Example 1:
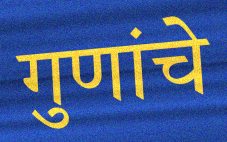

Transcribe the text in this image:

गुणांचे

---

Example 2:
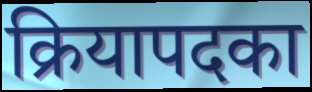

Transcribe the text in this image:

क्रियापदका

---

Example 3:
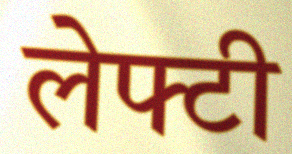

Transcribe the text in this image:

लेफ्टी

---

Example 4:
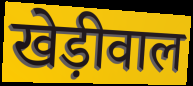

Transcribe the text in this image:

खेड़ीवाल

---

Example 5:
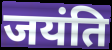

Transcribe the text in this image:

जयंति